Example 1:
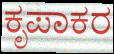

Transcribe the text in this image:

ಕೃಪಾಕರ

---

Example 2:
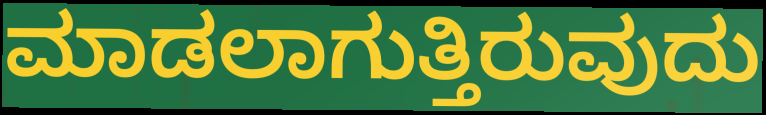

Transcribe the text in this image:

ಮಾಡಲಾಗುತ್ತಿರುವುದು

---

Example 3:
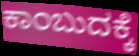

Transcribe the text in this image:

ಕಾಂಬುದಕ್ಕೆ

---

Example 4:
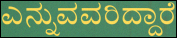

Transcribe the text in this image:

ಎನ್ನುವವರಿದ್ದಾರೆ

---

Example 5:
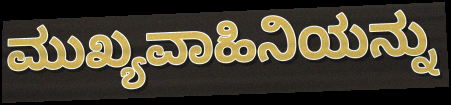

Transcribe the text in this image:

ಮುಖ್ಯವಾಹಿನಿಯನ್ನು